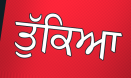
ਤੁੱਕਿਆ